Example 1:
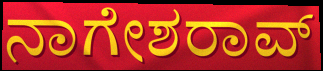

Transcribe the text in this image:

ನಾಗೇಶರಾವ್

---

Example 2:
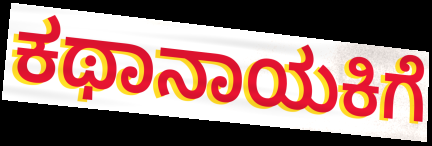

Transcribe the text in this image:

ಕಥಾನಾಯಕಿಗೆ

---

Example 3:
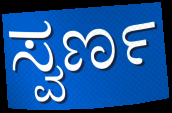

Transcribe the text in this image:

ಸ್ವರ್ಣ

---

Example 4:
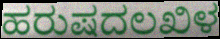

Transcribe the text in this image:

ಹರುಷದಲಖಿಳ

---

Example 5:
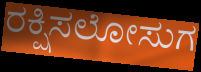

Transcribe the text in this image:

ರಕ್ಷಿಸಲೋಸುಗ